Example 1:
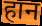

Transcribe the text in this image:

हान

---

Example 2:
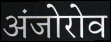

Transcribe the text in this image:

अंजोरोव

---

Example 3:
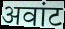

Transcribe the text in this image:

अवांट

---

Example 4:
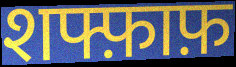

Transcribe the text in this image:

शफ्फ़ाफ़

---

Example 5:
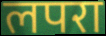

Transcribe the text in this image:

लपरा